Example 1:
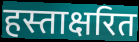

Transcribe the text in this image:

हस्ताक्षरित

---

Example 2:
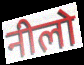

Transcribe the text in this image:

नीलो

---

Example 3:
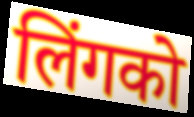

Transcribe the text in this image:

लिंगको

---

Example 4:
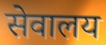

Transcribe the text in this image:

सेवालय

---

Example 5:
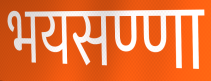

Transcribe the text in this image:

भयसण्णा